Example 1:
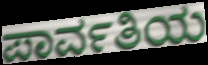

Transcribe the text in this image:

ಪಾರ್ವತಿಯ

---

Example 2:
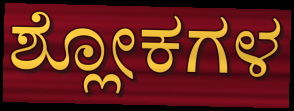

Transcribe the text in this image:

ಶ್ಲೋಕಗಳ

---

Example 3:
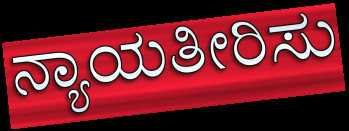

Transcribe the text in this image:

ನ್ಯಾಯತೀರಿಸು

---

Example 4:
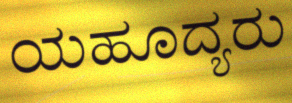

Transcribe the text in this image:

ಯಹೂದ್ಯರು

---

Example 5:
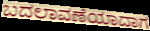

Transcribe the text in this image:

ಬದಲಾವಣೆಯಾದಾಗ